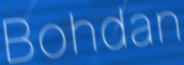
Bohdan